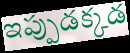
ఇప్పుడక్కడ